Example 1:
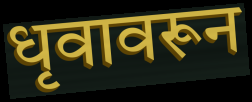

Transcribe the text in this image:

धृवावरून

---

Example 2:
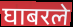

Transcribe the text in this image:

घाबरले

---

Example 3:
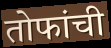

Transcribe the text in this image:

तोफांची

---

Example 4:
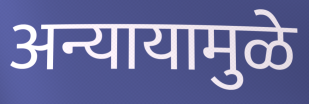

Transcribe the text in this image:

अन्यायामुळे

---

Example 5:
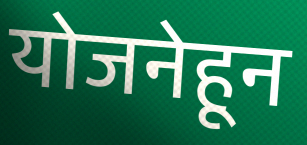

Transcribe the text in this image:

योजनेहून